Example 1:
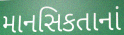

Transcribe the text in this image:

માનસિકતાનાં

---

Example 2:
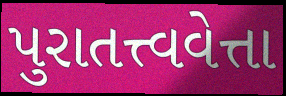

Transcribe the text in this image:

પુરાતત્ત્વવેત્તા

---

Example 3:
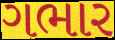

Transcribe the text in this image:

ગભાર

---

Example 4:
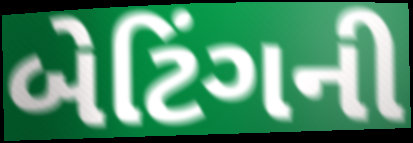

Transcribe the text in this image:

બેટિંગની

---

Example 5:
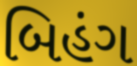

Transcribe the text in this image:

બિહંગ